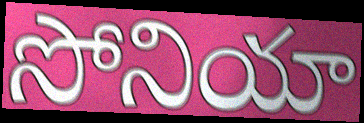
సోనియా